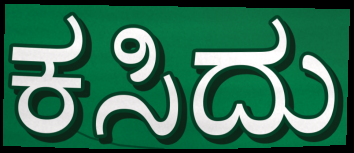
ಕಸಿದು